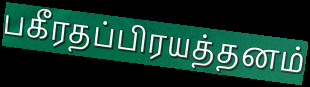
பகீரதப்பிரயத்தனம்